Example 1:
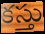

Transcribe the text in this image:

కస్తు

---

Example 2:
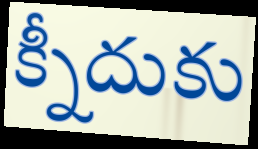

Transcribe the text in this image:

క్నీదుకు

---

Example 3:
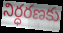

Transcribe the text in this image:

నిర్ధరణకు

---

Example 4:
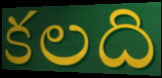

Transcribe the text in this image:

కలది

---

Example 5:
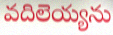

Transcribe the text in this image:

వదిలెయ్యను